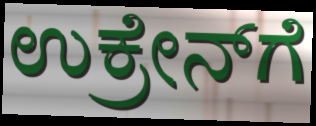
ಉಕ್ರೇನ್‌ಗೆ